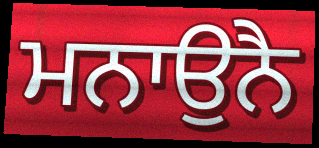
ਮਨਾਉਨੈ